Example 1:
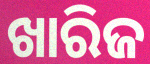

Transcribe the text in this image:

ଖାରିଜ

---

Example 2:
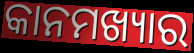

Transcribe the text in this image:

କାନମଖ୍ୟାର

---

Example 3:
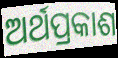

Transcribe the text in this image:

ଅର୍ଥପ୍ରକାଶ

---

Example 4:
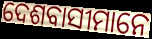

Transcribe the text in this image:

ଦେଶବାସୀମାନେ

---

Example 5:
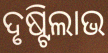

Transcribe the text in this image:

ଦୃଷ୍ଟିଲାଭ